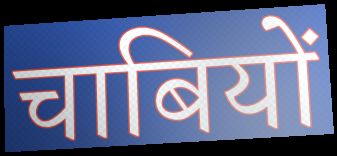
चाबियों